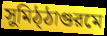
সুমিঠ্ঠাগুরমে